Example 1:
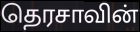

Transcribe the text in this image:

தெரசாவின்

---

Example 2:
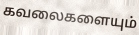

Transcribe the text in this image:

கவலைகளையும்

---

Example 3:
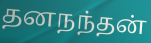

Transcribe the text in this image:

தனநந்தன்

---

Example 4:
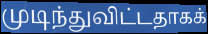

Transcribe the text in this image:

முடிந்துவிட்டதாகக்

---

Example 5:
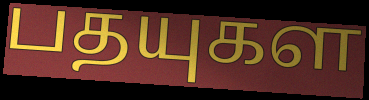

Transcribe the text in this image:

பதயுகள